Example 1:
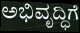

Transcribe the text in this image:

ಅಭಿವೃದ್ಧಿಗೆ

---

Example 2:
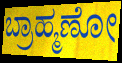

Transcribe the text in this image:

ಬ್ರಾಹ್ಮಣೋ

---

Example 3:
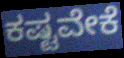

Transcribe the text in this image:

ಕಷ್ಟವೇಕೆ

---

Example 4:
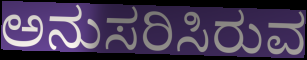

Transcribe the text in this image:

ಅನುಸರಿಸಿರುವ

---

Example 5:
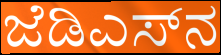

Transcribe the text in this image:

ಜೆಡಿಎಸ್‌ನ